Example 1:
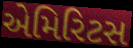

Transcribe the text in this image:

એમિરિટસ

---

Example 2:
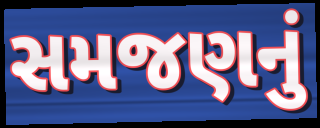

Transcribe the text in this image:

સમજણનું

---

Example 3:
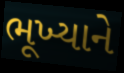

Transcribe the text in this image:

ભૂખ્યાને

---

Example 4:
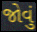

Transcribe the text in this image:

જોવું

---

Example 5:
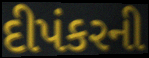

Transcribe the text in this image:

દીપંકરની